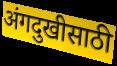
अंगदुखीसाठी